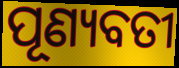
ପୂଣ୍ୟବତୀ